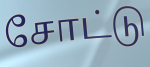
சோட்டு